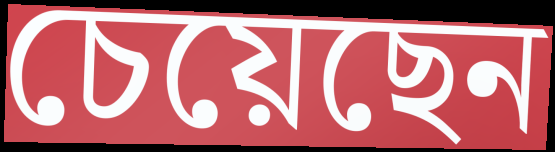
চেয়েছেন